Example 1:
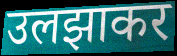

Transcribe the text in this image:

उलझाकर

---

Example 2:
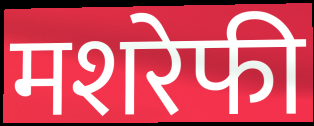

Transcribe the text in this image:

मशरेफी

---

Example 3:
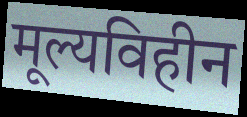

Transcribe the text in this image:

मूल्यविहीन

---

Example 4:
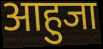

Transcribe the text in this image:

आहुजा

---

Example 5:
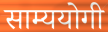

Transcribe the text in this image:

साम्ययोगी